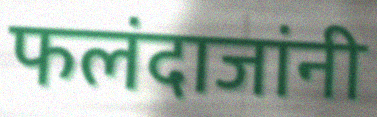
फलंदाजांनी